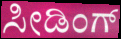
ಸೀಡಿಂಗ್